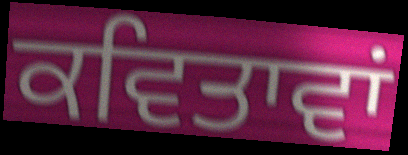
ਕਵਿਤਾਵਾਂ